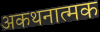
अकथनात्मक